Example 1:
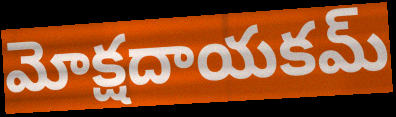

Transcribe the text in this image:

మోక్షదాయకమ్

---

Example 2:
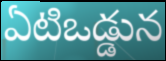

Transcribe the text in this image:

ఏటిఒడ్డున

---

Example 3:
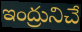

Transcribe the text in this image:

ఇంద్రునిచే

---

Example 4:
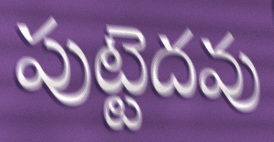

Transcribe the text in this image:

పుట్టెదవు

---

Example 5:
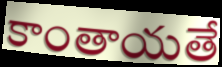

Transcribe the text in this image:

కాంతాయతే